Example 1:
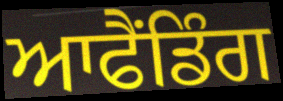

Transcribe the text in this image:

ਆਫੈਂਡਿੰਗ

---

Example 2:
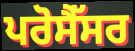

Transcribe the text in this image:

ਪਰੋਸੈੱਸਰ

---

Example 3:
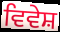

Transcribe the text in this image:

ਵਿਵੇਸ਼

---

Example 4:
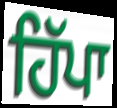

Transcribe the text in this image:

ਹਿੱਪਾ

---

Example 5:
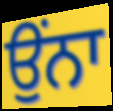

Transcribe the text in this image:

ਉੰਨਾ